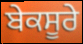
ਬੇਕਸੂਰੇ